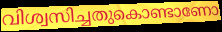
വിശ്വസിച്ചതുകൊണ്ടാണോ